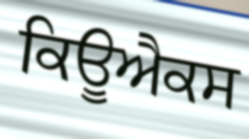
ਕਿਊਐਕਸ